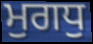
ਮੁਗਧੁ